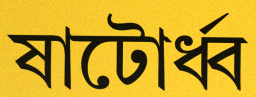
ষাটোর্ধ্ব